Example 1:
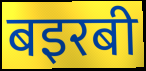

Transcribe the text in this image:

बइरबी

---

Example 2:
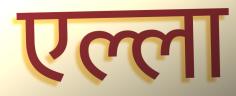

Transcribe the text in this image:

एल्ला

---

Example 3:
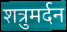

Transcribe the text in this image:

शत्रुमर्दन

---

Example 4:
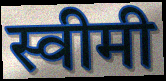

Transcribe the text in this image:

स्वीमी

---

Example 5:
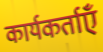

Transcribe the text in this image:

कार्यकर्ताएँ